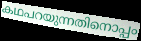
കഥപറയുന്നതിനൊപ്പം